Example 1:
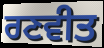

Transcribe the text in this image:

ਰਣਵੀਤ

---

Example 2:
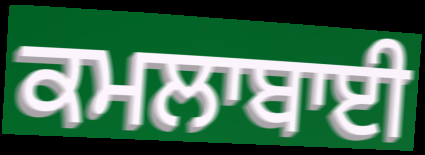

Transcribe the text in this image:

ਕਮਲਾਬਾਈ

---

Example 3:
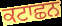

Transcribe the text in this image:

ਕਟਾਛਨ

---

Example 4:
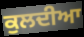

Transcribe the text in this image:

ਕੁਲਦੀਆ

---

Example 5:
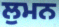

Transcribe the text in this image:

ਲੁਮਨ